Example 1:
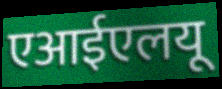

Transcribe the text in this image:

एआईएलयू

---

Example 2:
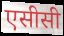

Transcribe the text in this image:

एसीसी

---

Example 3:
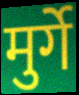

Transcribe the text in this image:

मुर्गे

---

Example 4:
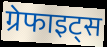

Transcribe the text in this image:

ग्रेफाइट्स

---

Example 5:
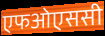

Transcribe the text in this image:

एफओएससी